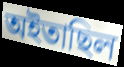
অইতাছিল